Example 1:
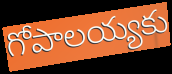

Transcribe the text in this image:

గోపాలయ్యకు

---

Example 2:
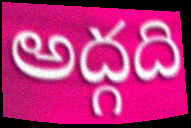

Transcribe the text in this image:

అద్గది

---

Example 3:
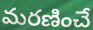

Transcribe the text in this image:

మరణించే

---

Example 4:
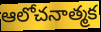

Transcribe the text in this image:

ఆలోచనాత్మక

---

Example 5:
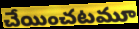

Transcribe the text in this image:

చేయించటమూ